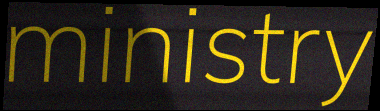
ministry